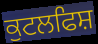
ਕੁਟਲਫਿਸ਼